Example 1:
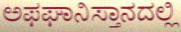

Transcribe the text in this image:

ಅಫಘಾನಿಸ್ತಾನದಲ್ಲಿ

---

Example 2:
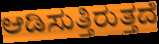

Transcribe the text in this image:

ಆಡಿಸುತ್ತಿರುತ್ತದೆ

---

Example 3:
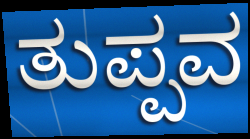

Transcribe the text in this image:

ತುಪ್ಪವ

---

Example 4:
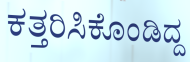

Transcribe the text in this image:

ಕತ್ತರಿಸಿಕೊಂಡಿದ್ದ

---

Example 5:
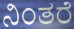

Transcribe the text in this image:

ನಿಂತರೆ